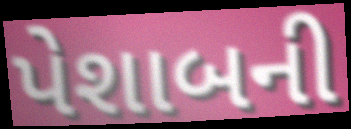
પેશાબની